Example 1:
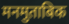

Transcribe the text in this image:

मनमुताबिक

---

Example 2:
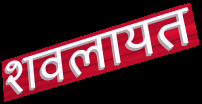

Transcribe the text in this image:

शवलायत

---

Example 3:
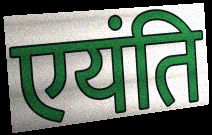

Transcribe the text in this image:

एयंति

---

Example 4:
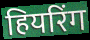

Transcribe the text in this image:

हियरिंग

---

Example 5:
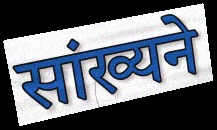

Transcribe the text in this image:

सांख्यने